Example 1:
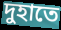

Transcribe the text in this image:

দুহাতে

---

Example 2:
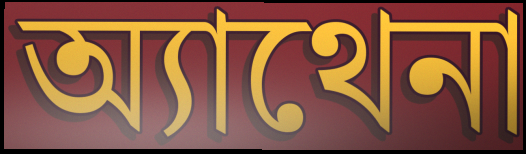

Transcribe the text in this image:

অ্যাথেনা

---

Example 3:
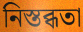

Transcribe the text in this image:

নিস্তব্ধতা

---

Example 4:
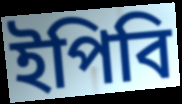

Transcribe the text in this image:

ইপিবি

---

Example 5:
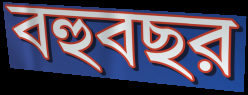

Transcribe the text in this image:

বহুবছর